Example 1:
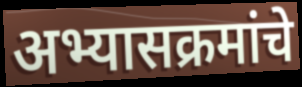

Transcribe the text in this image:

अभ्यासक्रमांचे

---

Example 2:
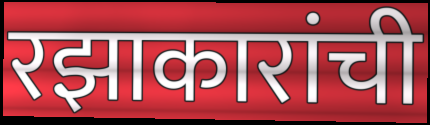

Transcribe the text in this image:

रझाकारांची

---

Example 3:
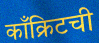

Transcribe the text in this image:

काँक्रिटची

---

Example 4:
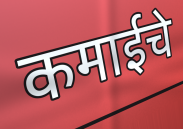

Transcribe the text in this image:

कमाईचे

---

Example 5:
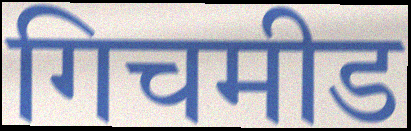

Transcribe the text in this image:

गिचमीड